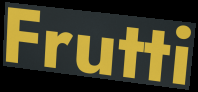
Frutti